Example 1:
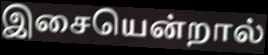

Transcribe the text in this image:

இசையென்றால்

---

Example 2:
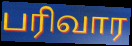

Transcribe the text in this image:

பரிவார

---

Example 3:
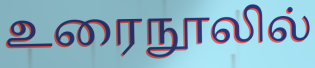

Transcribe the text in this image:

உரைநூலில்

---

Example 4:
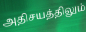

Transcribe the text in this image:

அதிசயத்திலும்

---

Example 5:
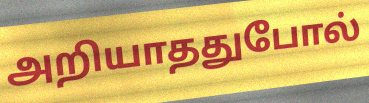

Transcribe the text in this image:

அறியாததுபோல்